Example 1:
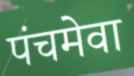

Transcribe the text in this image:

पंचमेवा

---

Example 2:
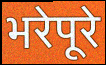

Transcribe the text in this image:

भरेपूरे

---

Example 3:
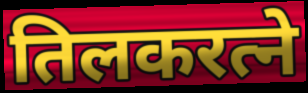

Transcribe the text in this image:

तिलकरत्ने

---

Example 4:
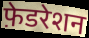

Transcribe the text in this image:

फ़ेडरेशन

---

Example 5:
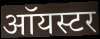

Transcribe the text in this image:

ऑयस्टर